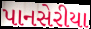
પાનસેરીયા